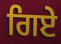
ਗਿਏ